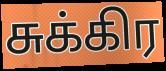
சுக்கிர